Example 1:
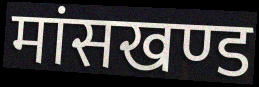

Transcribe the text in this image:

मांसखण्ड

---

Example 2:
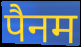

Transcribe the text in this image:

पैनम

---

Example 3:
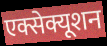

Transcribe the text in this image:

एक्सेक्यूशन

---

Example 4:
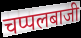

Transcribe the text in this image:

चप्पलबाजी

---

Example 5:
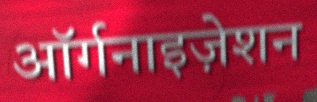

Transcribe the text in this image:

ऑर्गनाइज़ेशन